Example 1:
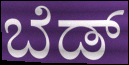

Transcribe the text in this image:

ಬೆಡ್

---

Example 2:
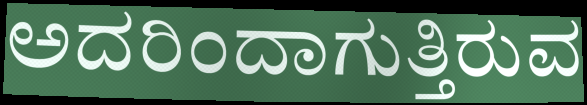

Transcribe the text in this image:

ಅದರಿಂದಾಗುತ್ತಿರುವ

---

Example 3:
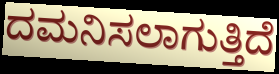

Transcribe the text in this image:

ದಮನಿಸಲಾಗುತ್ತಿದೆ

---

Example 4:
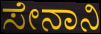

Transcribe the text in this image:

ಸೇನಾನಿ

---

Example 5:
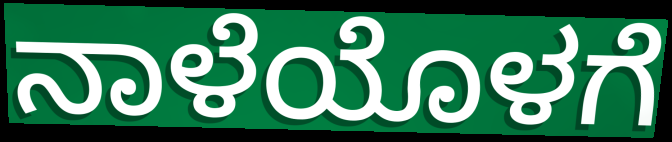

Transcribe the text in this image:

ನಾಳೆಯೊಳಗೆ